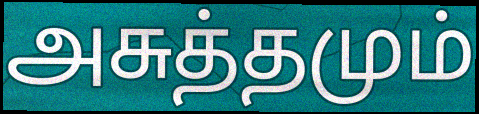
அசுத்தமும்